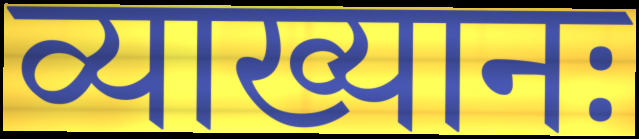
व्याख्यानः